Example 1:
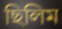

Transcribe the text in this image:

ছিলিম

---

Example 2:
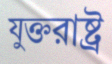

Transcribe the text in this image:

যুক্তরাষ্ট্র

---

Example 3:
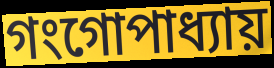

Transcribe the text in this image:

গংগোপাধ্যায়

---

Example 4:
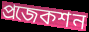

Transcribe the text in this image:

প্রজেকশন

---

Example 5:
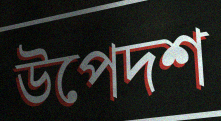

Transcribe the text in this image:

উপেদশ